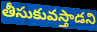
తీసుకువస్తాడని